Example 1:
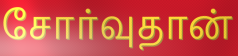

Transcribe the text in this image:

சோர்வுதான்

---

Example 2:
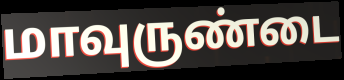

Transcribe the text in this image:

மாவுருண்டை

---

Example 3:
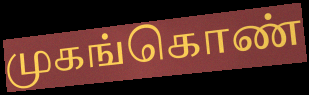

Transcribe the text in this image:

முகங்கொண்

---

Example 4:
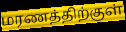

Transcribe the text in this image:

மரணத்திற்குள்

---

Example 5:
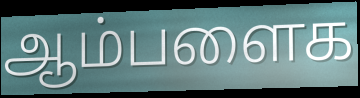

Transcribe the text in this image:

ஆம்பளைக